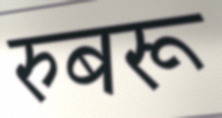
रुबरू